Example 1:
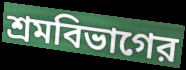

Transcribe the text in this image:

শ্রমবিভাগের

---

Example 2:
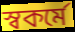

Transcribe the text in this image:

স্বকর্মে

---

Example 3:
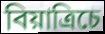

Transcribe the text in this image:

বিয়াত্রিচে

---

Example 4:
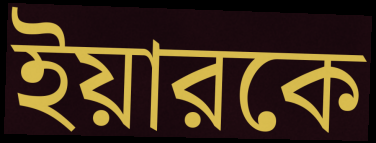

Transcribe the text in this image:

ইয়ারকে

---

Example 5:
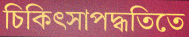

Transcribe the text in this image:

চিকিৎসাপদ্ধতিতে